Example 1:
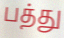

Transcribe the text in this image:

பத்து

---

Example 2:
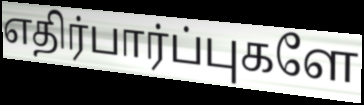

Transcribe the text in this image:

எதிர்பார்ப்புகளே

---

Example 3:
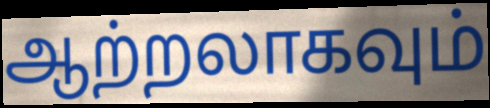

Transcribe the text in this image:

ஆற்றலாகவும்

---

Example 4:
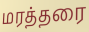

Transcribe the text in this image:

மரத்தரை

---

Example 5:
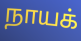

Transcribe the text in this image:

நாயக்